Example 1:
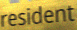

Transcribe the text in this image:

resident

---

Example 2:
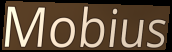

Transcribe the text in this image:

Mobius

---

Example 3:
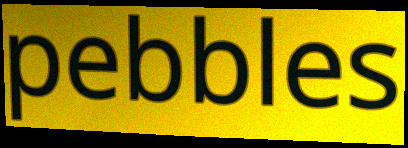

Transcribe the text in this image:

pebbles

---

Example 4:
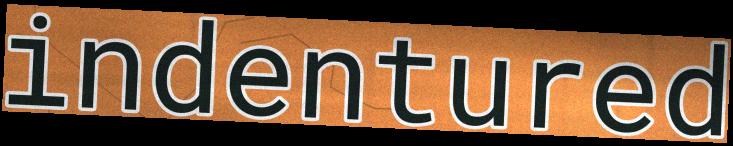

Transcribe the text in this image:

indentured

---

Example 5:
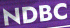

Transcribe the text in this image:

NDBC